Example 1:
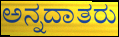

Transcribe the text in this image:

ಅನ್ನದಾತರು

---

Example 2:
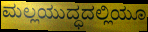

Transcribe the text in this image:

ಮಲ್ಲಯುದ್ಧದಲ್ಲಿಯೂ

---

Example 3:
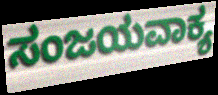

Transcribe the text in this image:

ಸಂಜಯವಾಕ್ಯ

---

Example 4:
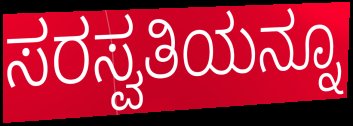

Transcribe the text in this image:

ಸರಸ್ವತಿಯನ್ನೂ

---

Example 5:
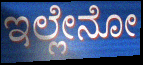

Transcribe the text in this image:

ಇಲ್ಲೇನೋ